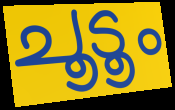
ചൂടൂം